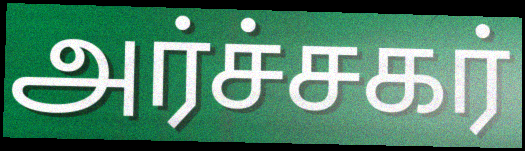
அர்ச்சகர்